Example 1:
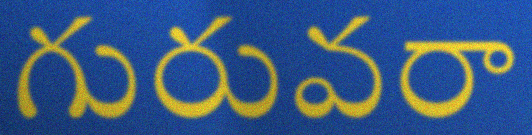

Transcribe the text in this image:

గురువరా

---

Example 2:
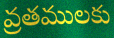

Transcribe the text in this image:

వ్రతములకు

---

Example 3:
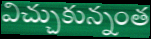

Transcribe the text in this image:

విచ్చుకున్నంత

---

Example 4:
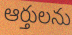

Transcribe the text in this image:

ఆర్తులను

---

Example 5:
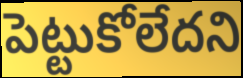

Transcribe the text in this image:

పెట్టుకోలేదని